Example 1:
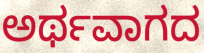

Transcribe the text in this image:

ಅರ್ಥವಾಗದ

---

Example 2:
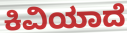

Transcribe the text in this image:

ಕಿವಿಯಾದೆ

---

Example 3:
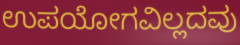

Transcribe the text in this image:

ಉಪಯೋಗವಿಲ್ಲದವು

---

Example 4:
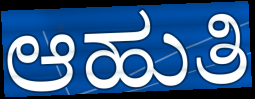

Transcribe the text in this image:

ಆಹುತಿ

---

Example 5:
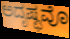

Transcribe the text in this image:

ಅದೃಷ್ಟವೊ